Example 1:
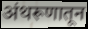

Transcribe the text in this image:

अंथरूणातून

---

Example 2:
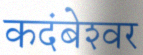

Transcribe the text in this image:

कदंबेश्वर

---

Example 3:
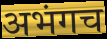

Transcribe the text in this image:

अभंगच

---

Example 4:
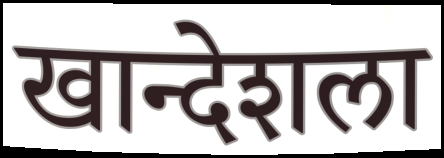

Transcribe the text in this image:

खान्देशला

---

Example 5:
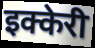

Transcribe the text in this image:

इक्केरी